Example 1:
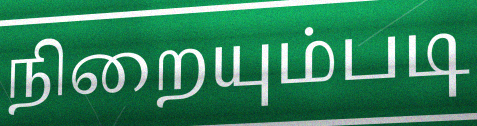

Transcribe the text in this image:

நிறையும்படி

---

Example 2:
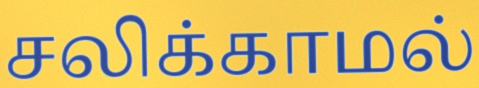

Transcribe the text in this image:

சலிக்காமல்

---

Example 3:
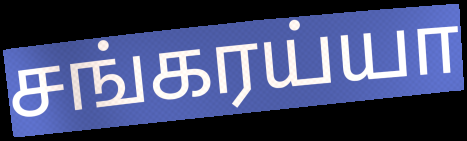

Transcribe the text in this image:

சங்கரய்யா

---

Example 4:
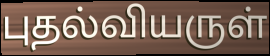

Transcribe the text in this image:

புதல்வியருள்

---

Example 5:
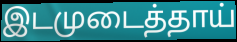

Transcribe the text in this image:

இடமுடைத்தாய்